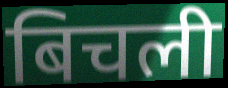
बिचली